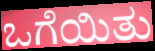
ಒಗೆಯಿತು